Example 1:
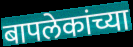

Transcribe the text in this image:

बापलेकांच्या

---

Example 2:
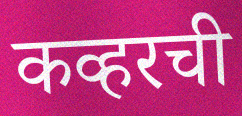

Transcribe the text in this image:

कव्हरची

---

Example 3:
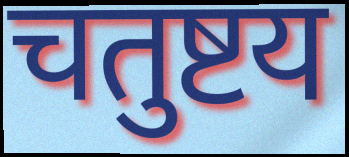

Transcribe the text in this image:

चतुष्टय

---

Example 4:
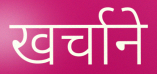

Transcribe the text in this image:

खर्चाने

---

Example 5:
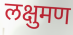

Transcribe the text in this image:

लक्षुमण